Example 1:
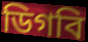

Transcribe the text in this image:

ডিগবি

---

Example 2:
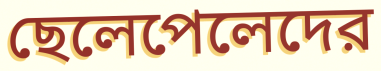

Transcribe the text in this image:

ছেলেপেলেদের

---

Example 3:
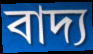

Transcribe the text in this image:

বাদ্য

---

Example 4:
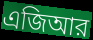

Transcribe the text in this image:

এজিআর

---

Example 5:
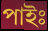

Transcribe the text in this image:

পাইঃ